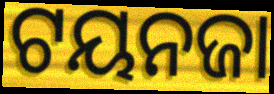
ଟୟନଜା